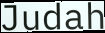
Judah